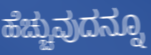
ಹೆಚ್ಚುವುದನ್ನೂ